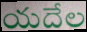
యదేల